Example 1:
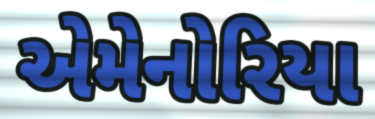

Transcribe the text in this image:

એમેનોરિયા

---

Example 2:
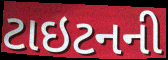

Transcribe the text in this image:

ટાઇટનની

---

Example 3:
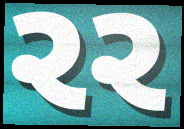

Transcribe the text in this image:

રર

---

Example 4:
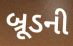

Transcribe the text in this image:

બ્રૂડની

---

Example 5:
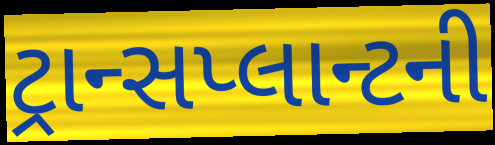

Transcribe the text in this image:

ટ્રાન્સપ્લાન્ટની